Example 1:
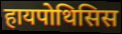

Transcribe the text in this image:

हायपोथिसिस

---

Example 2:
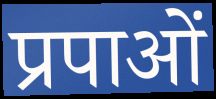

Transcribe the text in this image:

प्रपाओं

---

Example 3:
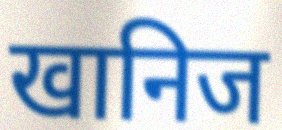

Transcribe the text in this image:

खानिज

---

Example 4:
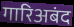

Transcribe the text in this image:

गारिअबंद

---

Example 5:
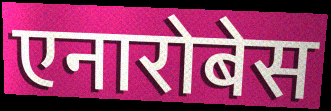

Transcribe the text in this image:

एनारोबेस